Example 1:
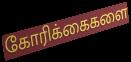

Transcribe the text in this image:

கோரிக்கைகளை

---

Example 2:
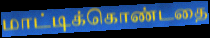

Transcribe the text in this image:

மாட்டிக்கொண்டதை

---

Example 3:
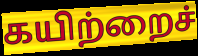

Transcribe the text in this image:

கயிற்றைச்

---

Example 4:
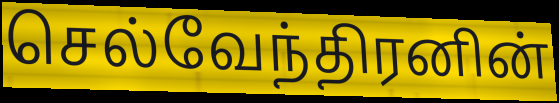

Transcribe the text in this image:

செல்வேந்திரனின்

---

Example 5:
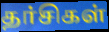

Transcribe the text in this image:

தர்சிகள்